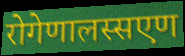
रोगेणालस्सएण